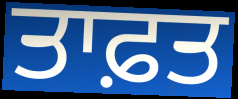
ਤਾਫ਼ਤ